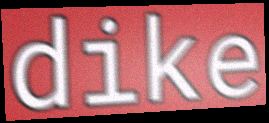
dike